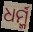
ଧର୍ମ୍ମ